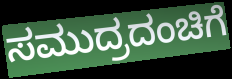
ಸಮುದ್ರದಂಚಿಗೆ